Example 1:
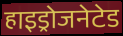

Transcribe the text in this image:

हाइड्रोजनेटेड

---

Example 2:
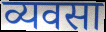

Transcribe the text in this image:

व्यवसा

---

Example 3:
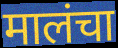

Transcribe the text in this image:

मालंचा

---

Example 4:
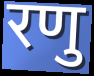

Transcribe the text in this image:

रणु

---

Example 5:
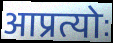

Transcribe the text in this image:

आप्रत्योः